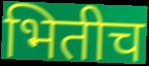
भितीच